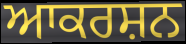
ਆਕਰਸ਼ਨ